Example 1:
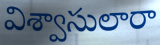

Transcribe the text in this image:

విశ్వాసులారా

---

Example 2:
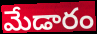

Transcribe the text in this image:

మేడారం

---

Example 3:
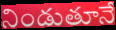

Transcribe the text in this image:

నిండుతూనే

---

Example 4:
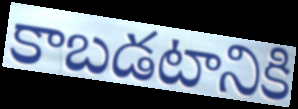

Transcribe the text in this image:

కాబడటానికి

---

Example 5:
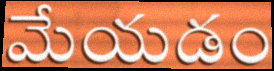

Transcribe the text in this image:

మేయడం